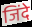
जिंदे